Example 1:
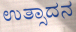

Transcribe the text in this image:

ಉತ್ಸಾದನ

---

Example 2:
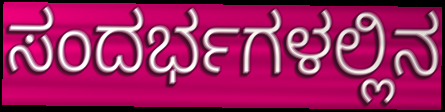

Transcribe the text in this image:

ಸಂದರ್ಭಗಳಲ್ಲಿನ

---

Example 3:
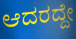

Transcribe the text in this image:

ಆದರದ್ದೇ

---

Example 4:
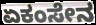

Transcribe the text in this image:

ಏಕಂಸೇನ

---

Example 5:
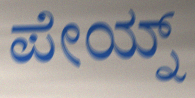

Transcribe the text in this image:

ಪೇಯ್ನ್